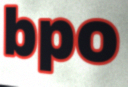
bpo